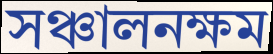
সঞ্চালনক্ষম